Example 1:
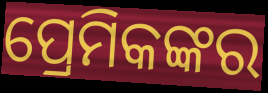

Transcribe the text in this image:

ପ୍ରେମିକଙ୍କର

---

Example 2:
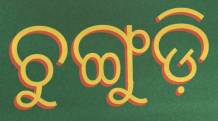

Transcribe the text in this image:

ଚୁଙ୍ଗୁଡ଼ି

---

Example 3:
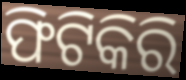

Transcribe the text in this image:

ଫିଟିକିରି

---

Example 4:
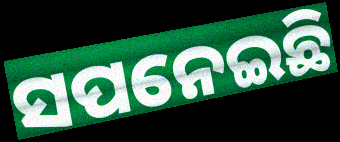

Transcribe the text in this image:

ସପନେଇଛି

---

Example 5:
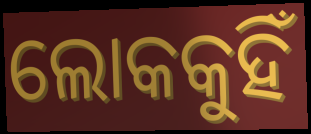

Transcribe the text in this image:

ଲୋକକୁହିଁ